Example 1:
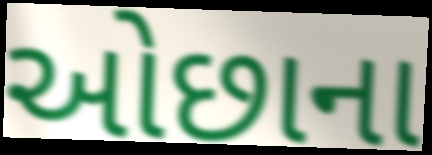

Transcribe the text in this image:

ઓછાના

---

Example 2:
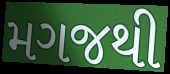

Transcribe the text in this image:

મગજથી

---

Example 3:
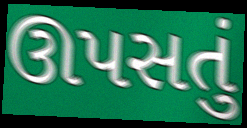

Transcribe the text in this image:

ઊપસતું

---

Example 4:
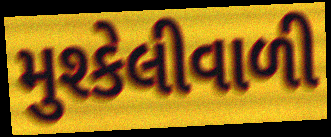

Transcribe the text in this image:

મુશ્કેલીવાળી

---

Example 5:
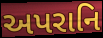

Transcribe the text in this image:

અપરાનિ